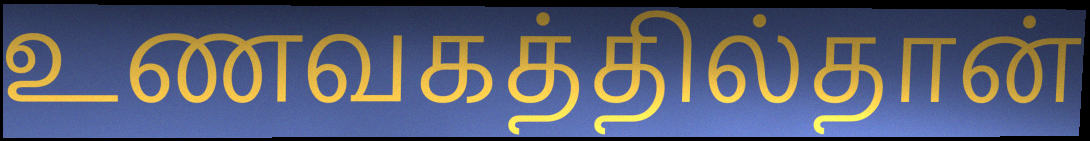
உணவகத்தில்தான்